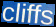
cliffs